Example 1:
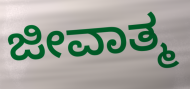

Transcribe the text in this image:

ಜೀವಾತ್ಮ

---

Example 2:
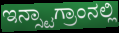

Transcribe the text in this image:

ಇನ್ಸ್ಟಾಗ್ರಾಂನಲ್ಲಿ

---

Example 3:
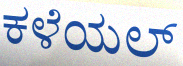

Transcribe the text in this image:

ಕಳೆಯಲ್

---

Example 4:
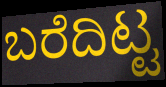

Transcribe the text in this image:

ಬರೆದಿಟ್ಟ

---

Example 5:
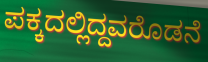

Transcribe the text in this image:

ಪಕ್ಕದಲ್ಲಿದ್ದವರೊಡನೆ